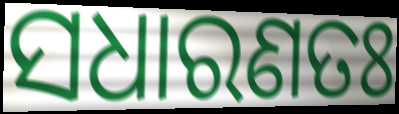
ସଧାରଣତଃ